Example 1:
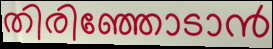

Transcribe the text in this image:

തിരിഞ്ഞോടാൻ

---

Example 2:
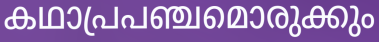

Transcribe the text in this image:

കഥാപ്രപഞ്ചമൊരുക്കും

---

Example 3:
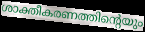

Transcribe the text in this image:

ശാക്തീകരണത്തിന്റെയും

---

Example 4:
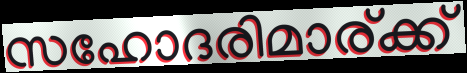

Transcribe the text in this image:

സഹോദരിമാര്ക്ക്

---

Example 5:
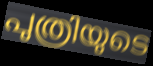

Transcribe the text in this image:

പുത്രിയുടെ